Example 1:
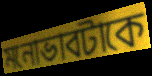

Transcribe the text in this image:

মনোভাবটাকে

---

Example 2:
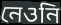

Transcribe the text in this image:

নেওনি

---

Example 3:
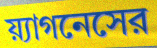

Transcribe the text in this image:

য়্যাগনেসের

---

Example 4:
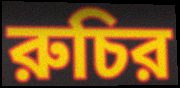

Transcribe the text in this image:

রুচির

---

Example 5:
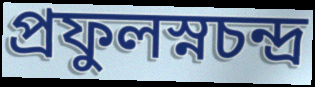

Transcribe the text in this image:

প্রফুলস্নচন্দ্র